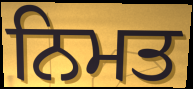
ਨਿਮਤ